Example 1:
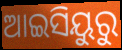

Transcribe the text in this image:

ଆଇସିୟୁରୁ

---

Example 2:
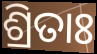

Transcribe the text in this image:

ଶ୍ରିତାଃ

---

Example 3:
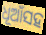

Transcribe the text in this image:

ଧୂଆଁସହ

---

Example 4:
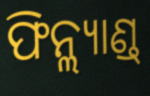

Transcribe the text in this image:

ଫିନ୍ଲ୍ୟାଣ୍ଡ୍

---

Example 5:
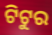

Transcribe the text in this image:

ଟିଟୁର